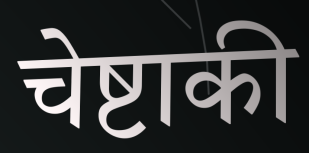
चेष्टाकी